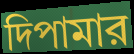
দিপামার